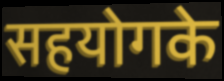
सहयोगके